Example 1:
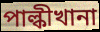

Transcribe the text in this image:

পাল্কীখানা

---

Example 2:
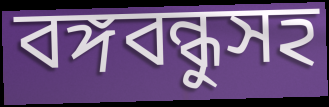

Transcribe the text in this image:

বঙ্গবন্ধুসহ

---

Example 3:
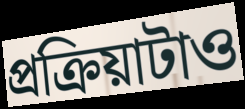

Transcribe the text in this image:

প্রক্রিয়াটাও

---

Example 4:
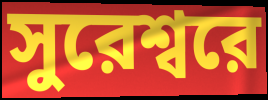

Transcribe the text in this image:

সুরেশ্বরে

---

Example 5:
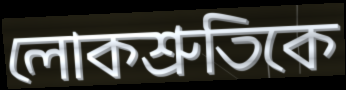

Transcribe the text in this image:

লোকশ্রুতিকে